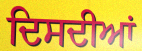
ਦਿਸਦੀਆਂ